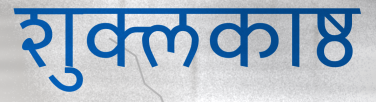
शुक्लकाष्ठ